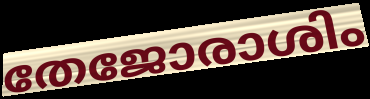
തേജോരാശിം